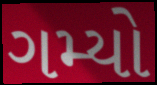
ગમ્યો